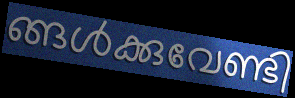
ങ്ങൾക്കുവേണ്ടി